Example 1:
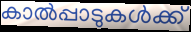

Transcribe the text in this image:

കാൽപ്പാടുകൾക്ക്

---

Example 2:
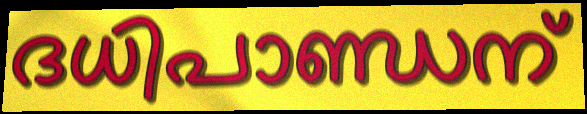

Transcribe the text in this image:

ദധിപാണ്ഡന്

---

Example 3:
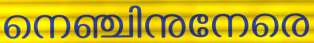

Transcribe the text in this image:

നെഞ്ചിനുനേരെ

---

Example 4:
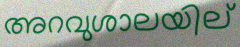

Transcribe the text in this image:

അറവുശാലയില്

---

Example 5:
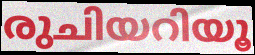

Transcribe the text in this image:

രുചിയറിയൂ